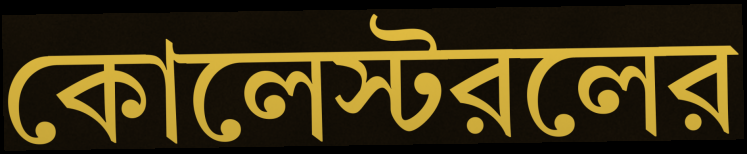
কোলেস্টরলের